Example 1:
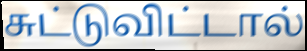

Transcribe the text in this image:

சுட்டுவிட்டால்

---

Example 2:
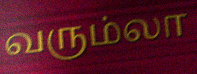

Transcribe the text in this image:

வரும்லா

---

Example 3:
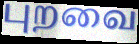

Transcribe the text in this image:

புறவை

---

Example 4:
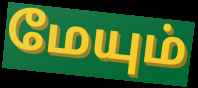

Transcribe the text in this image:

மேயும்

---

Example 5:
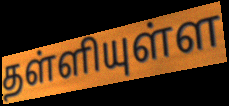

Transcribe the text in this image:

தள்ளியுள்ள